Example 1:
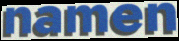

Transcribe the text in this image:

namen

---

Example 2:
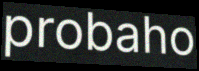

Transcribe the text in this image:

probaho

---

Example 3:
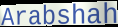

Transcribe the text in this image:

Arabshah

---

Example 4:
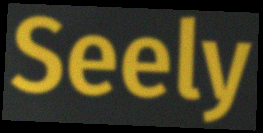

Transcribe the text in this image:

Seely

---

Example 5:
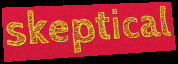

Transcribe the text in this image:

skeptical